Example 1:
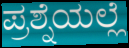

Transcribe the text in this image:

ಪ್ರಶ್ನೆಯಲ್ಲೆ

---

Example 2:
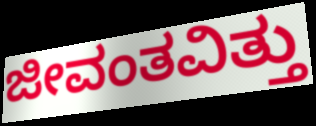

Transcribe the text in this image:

ಜೀವಂತವಿತ್ತು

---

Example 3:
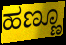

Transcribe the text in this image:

ಹಣ್ಣೂ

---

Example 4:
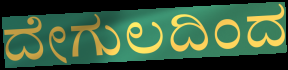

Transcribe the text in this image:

ದೇಗುಲದಿಂದ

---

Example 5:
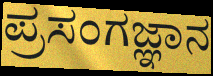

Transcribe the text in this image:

ಪ್ರಸಂಗಜ್ಞಾನ